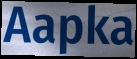
Aapka